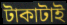
টাকাটাই